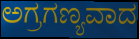
ಅಗ್ರಗಣ್ಯವಾದ